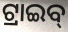
ଟ୍ରାଇବ୍